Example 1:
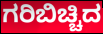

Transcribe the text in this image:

ಗರಿಬಿಚ್ಚಿದ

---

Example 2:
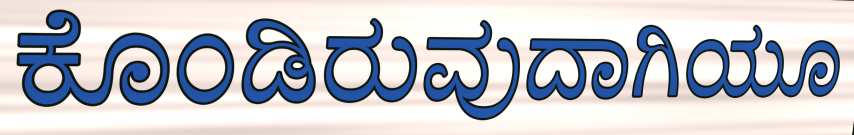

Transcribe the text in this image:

ಕೊಂಡಿರುವುದಾಗಿಯೂ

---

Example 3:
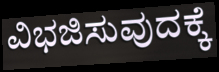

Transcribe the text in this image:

ವಿಭಜಿಸುವುದಕ್ಕೆ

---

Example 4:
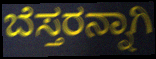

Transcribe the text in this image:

ಬೆಸ್ತರನ್ನಾಗಿ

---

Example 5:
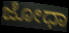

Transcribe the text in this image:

ಜೋಧಾ